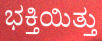
ಭಕ್ತಿಯಿತ್ತು